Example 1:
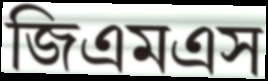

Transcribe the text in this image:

জিএমএস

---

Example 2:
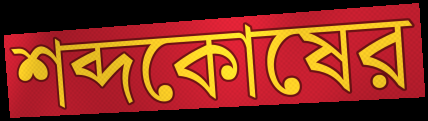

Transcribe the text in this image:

শব্দকোষের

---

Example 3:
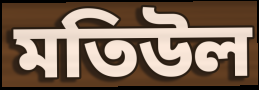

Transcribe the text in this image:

মতিউল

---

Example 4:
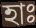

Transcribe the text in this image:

হাঃ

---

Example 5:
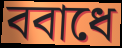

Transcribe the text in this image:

ববাধে